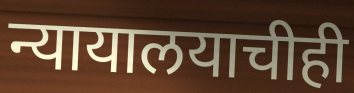
न्यायालयाचीही